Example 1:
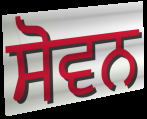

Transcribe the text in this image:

ਸੋਵਨ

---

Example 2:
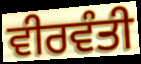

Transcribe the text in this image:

ਵੀਰਵੰਤੀ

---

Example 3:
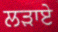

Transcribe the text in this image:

ਲੜਾਏ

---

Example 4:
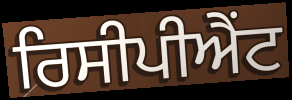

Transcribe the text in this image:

ਰਿਸੀਪੀਐਂਟ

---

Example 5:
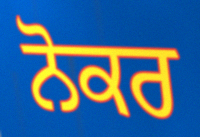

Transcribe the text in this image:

ਨੋਕਰ